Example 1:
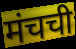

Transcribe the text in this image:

मंचची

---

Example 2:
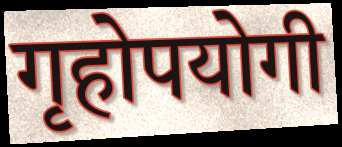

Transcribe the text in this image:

गृहोपयोगी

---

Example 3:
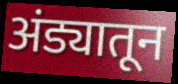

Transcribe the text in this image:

अंड्यातून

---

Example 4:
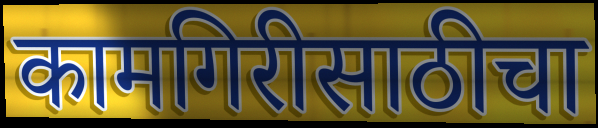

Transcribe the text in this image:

कामगिरीसाठीचा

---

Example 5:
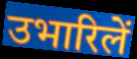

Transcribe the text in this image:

उभारिलें